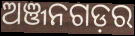
ଅଞ୍ଜନଗଡ଼ର